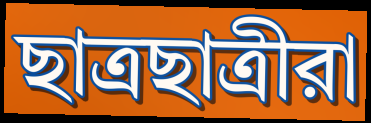
ছাত্রছাত্রীরা